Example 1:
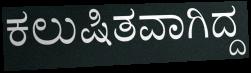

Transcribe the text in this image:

ಕಲುಷಿತವಾಗಿದ್ದ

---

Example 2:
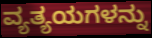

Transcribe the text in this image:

ವ್ಯತ್ಯಯಗಳನ್ನು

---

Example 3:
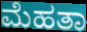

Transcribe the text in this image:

ಮೆಹತಾ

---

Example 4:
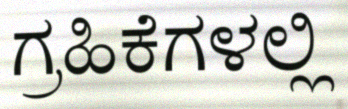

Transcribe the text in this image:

ಗ್ರಹಿಕೆಗಳಲ್ಲಿ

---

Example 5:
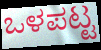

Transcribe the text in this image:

ಒಳಪಟ್ಟ